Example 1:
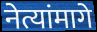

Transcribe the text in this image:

नेत्यांमागे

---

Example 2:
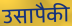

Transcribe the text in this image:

उसापैकी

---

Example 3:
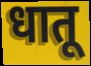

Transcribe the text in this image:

धातू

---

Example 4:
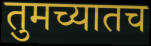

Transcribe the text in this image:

तुमच्यातच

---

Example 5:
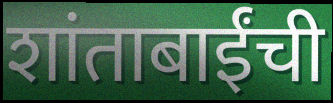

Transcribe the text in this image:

शांताबाईंची